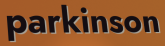
parkinson